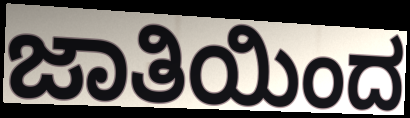
ಜಾತಿಯಿಂದ